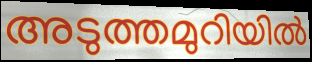
അടുത്തമുറിയിൽ